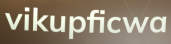
vikupficwa